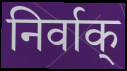
निर्वाक्